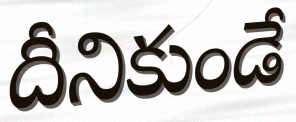
దీనికుండే